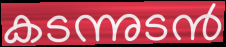
കടന്നുടൻ